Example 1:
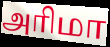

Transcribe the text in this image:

அரிமா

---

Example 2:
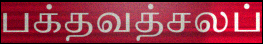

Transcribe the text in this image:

பக்தவத்சலப்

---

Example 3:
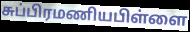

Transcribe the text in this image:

சுப்பிரமணியபிள்ளை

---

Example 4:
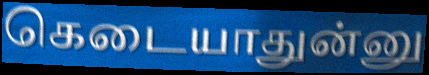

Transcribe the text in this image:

கெடையாதுன்னு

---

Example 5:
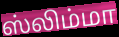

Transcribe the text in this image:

ஸ்லிம்மா